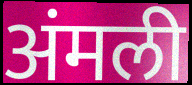
अंमली